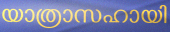
യാത്രാസഹായി